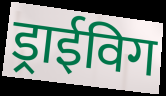
ड्राईविग